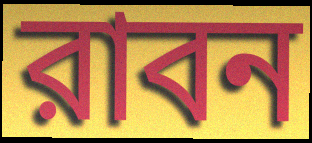
রাবন